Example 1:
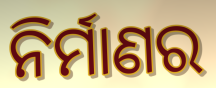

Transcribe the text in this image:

ନିର୍ମାଣର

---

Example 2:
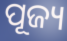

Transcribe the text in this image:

ପୂଜ୍ୟ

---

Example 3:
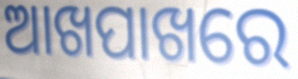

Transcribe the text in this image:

ଆଖପାଖରେ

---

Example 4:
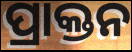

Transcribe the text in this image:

ପ୍ରାକ୍ତନ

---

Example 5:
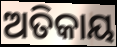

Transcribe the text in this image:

ଅତିକାୟ